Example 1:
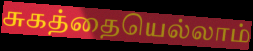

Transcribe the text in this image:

சுகத்தையெல்லாம்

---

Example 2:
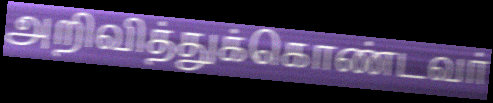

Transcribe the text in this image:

அறிவித்துக்கொண்டவர்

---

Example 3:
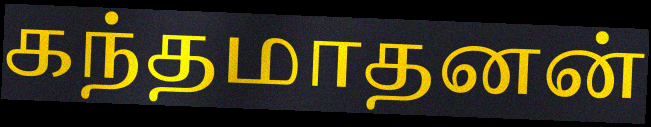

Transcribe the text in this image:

கந்தமாதனன்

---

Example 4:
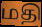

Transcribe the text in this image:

மதி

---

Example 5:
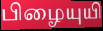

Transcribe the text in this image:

பிழையுயி